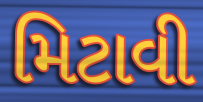
મિટાવી